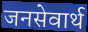
जनसेवार्थ